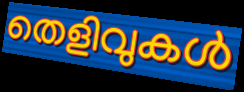
തെളിവുകൾ